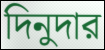
দিনুদার